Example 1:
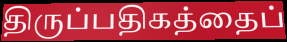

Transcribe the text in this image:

திருப்பதிகத்தைப்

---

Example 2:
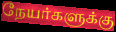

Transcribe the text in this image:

நேயர்களுக்கு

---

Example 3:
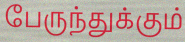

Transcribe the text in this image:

பேருந்துக்கும்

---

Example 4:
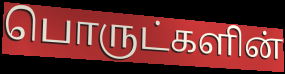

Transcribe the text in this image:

பொருட்களின்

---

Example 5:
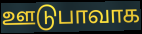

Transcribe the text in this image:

ஊடுபாவாக